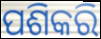
ପଶିକରି